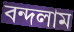
বন্দলাম